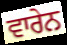
ਵਾਰੇਨ